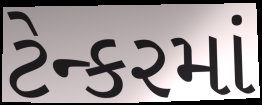
ટેન્કરમાં